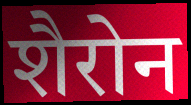
शैरोन